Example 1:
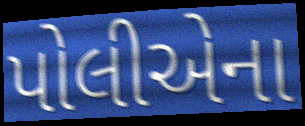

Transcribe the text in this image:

પોલીએના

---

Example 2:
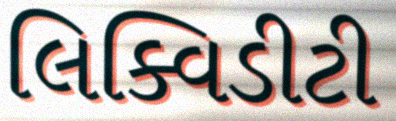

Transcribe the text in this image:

લિક્વિડીટી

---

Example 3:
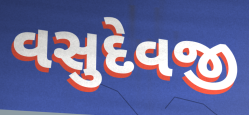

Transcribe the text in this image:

વસુદેવજી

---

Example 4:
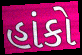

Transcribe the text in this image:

હાંકો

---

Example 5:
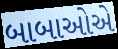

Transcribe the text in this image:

બાબાઓએ